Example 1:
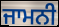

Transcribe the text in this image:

ਜਾਮਨੀ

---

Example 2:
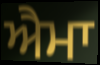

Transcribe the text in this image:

ਐਮਾ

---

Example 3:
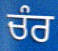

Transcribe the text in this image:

ਚੰਰ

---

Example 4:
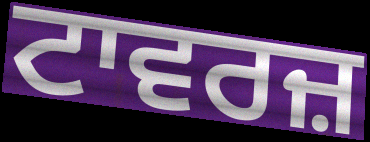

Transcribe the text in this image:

ਟਾਵਰਜ਼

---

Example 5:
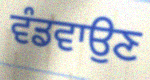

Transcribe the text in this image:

ਵੰਡਵਾਉਣ